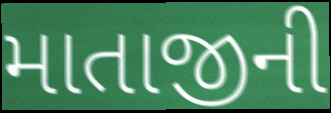
માતાજીની